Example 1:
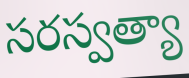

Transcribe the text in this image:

సరస్వత్యా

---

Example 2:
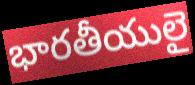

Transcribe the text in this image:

భారతీయులై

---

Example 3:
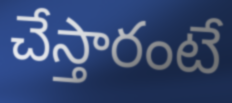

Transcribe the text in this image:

చేస్తారంటే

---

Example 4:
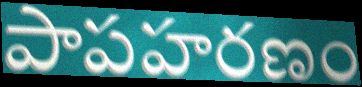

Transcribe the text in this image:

పాపహరణం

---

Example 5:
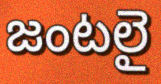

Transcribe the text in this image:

జంటలై